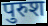
पुरुश